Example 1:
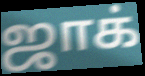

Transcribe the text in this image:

ஜாக்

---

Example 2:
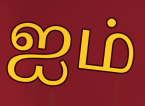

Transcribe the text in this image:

ஐம்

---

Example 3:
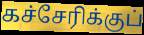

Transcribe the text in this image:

கச்சேரிக்குப்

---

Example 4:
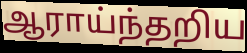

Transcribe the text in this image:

ஆராய்ந்தறிய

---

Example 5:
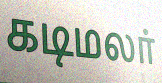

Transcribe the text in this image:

கடிமலர்